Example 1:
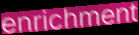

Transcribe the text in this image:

enrichment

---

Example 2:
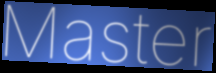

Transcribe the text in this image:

Master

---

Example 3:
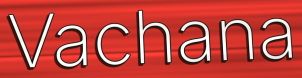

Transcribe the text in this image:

Vachana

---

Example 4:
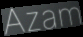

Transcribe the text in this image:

Azam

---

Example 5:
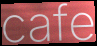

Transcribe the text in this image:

cafe